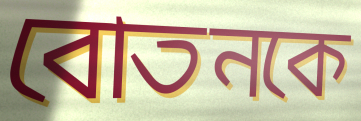
বোতনকে